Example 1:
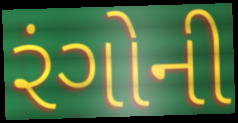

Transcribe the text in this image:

રંગોની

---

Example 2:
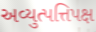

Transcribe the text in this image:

અવ્યુત્પત્તિપક્ષ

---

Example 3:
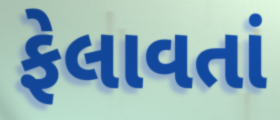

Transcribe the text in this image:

ફેલાવતાં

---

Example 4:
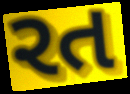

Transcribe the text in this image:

રત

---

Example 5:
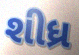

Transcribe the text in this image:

શીધ્ર